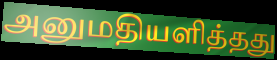
அனுமதியளித்தது